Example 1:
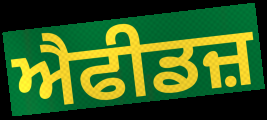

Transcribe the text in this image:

ਐਫੀਡਜ਼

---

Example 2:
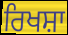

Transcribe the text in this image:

ਰਿਖਸ਼ਾ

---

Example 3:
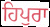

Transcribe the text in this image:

ਹਿਪੁਰਾ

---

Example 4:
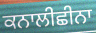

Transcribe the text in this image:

ਕਨਾਲੀਛੀਨਾ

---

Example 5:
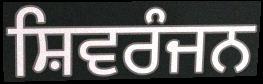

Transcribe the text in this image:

ਸ਼ਿਵਰੰਜਨ